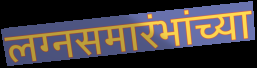
लग्नसमारंभांच्या